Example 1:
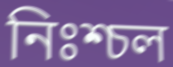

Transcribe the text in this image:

নিঃশ্চল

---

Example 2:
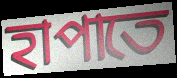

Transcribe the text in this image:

হাপাতে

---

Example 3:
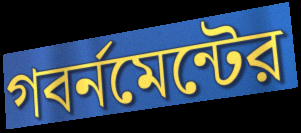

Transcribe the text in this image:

গবর্নমেন্টের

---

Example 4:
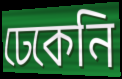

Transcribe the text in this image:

ঢেকেনি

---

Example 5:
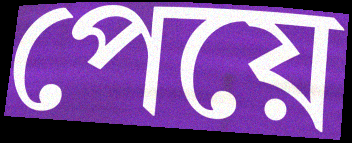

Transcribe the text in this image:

পেয়ে